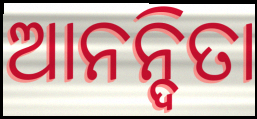
ଆନନ୍ଦିତା